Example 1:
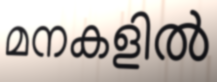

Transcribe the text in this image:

മനകളിൽ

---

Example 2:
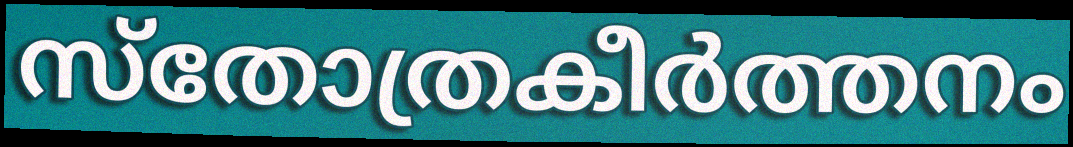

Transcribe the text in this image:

സ്തോത്രകീർത്തനം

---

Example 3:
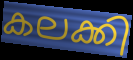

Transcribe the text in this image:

കലക്കി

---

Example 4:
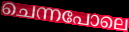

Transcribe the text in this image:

ചെന്നപോലെ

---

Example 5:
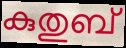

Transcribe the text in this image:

കുതുബ്